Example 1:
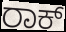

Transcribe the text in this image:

ರಾಕ್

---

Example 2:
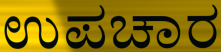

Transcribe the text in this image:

ಉಪಚಾರ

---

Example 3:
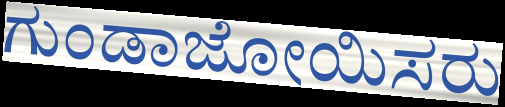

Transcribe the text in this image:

ಗುಂಡಾಜೋಯಿಸರು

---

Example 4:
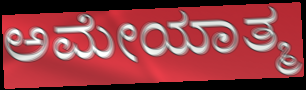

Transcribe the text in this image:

ಅಮೇಯಾತ್ಮ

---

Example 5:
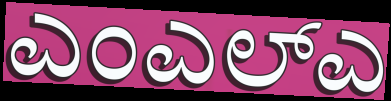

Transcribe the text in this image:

ಎಂಎಲ್ಎ